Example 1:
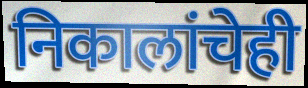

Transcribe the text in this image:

निकालांचेही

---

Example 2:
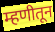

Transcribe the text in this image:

म्हणीतून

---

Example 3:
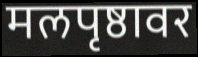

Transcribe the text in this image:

मलपृष्ठावर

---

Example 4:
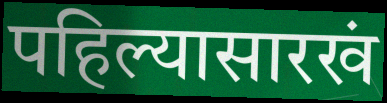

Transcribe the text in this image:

पहिल्यासारखं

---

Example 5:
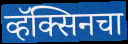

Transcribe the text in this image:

व्हॅक्सिनचा